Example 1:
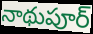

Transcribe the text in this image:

నాథుపూర్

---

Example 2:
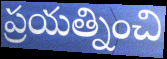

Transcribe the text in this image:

ప్రయత్నించి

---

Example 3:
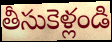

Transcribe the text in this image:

తీసుకెళ్లండి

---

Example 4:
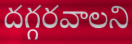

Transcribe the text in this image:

దగ్గరవాలని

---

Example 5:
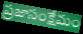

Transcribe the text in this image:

ప్రజాసంక్షేమం